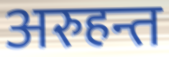
अरुहन्त